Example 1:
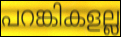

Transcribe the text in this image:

പറങ്കികളല്ല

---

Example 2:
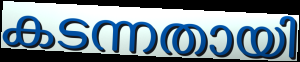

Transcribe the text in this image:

കടന്നതായി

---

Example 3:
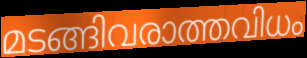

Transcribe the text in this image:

മടങ്ങിവരാത്തവിധം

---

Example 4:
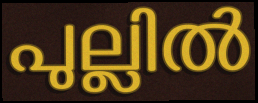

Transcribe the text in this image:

പുല്ലിൽ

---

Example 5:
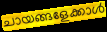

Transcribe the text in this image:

ചായങ്ങളേക്കാൾ